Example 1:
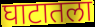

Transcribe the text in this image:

घाटातला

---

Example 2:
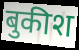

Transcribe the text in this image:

बुकीश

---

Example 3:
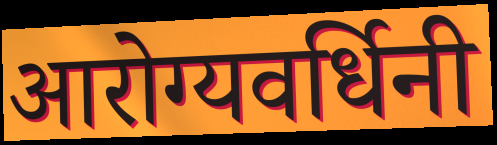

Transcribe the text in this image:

आरोग्यवर्धिनी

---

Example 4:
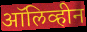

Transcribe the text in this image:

ऑलिव्हीन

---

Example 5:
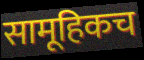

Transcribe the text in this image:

सामूहिकच